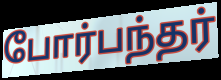
போர்பந்தர்